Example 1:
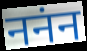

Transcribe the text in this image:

ननंन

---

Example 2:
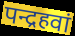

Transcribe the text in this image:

पन्द्रहवां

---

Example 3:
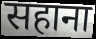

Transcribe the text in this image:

सहाना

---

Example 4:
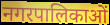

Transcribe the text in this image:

नगरपालिकाओं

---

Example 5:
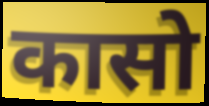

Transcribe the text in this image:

कासो